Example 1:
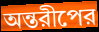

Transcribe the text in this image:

অন্তরীপের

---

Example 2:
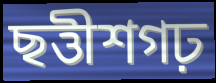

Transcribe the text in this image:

ছত্তীশগঢ়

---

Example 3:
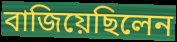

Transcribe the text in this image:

বাজিয়েছিলেন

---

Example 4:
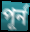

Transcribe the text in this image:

পূর্ন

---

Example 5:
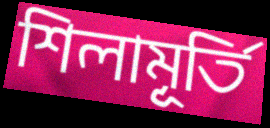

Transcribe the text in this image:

শিলামূর্তি